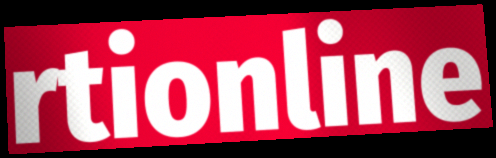
rtionline